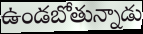
ఉండబోతున్నాడు